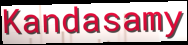
Kandasamy